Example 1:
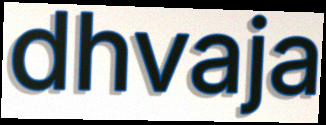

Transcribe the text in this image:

dhvaja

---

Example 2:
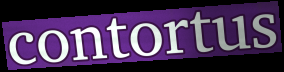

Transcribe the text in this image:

contortus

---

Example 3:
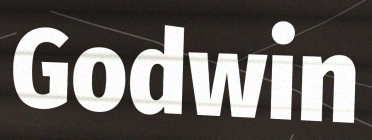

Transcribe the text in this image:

Godwin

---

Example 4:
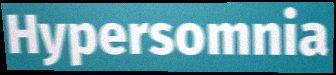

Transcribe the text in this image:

Hypersomnia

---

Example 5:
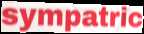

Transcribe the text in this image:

sympatric